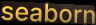
seaborn